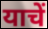
याचें